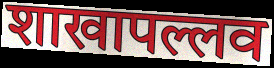
शाखापल्लव